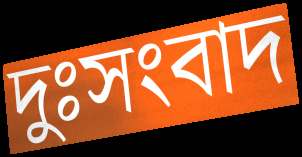
দুঃসংবাদ